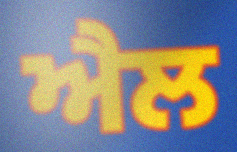
ਐਲ